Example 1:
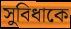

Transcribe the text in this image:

সুবিধাকে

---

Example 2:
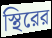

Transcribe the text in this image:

স্থিরের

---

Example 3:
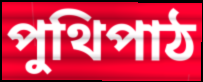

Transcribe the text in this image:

পুথিপাঠ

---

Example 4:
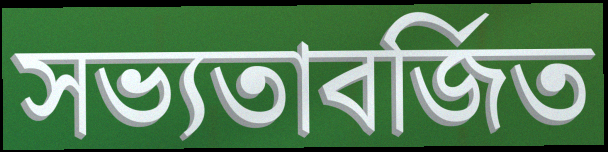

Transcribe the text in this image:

সভ্যতাবর্জিত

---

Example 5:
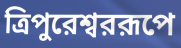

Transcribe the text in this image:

ত্রিপুরেশ্বররূপে